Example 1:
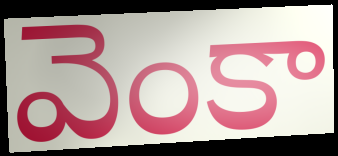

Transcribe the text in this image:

వెంకా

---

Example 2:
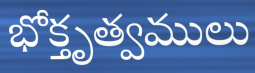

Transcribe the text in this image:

భోక్తృత్వములు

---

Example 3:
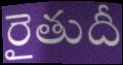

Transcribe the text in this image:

రైతుదీ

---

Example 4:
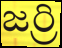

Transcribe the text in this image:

జర్రి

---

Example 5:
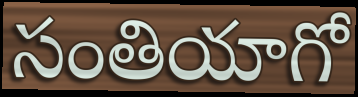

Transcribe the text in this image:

సంతియాగో